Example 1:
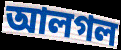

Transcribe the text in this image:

আলগল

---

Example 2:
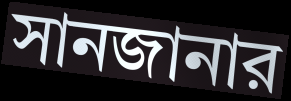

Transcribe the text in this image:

সানজানার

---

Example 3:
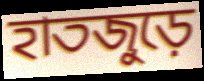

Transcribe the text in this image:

হাতজুড়ে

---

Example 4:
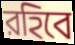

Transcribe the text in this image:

রহিবে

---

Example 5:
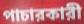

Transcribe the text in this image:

পাচারকারী